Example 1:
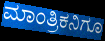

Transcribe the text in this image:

ಮಾಂತ್ರಿಕನಿಗೂ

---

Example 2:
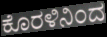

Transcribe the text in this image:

ಕೊರಳಿನಿಂದ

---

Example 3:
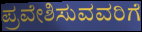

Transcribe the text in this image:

ಪ್ರವೇಶಿಸುವವರಿಗೆ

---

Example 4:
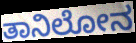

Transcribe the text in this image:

ತಾನಿಲೋನ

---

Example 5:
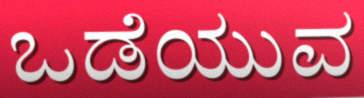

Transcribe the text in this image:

ಒಡೆಯುವ